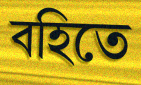
বহিতে